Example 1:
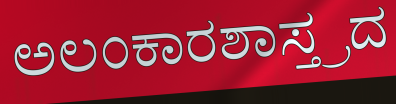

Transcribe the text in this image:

ಅಲಂಕಾರಶಾಸ್ತ್ರದ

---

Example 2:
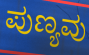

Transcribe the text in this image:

ಪುಣ್ಯವು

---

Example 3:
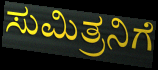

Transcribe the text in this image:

ಸುಮಿತ್ರನಿಗೆ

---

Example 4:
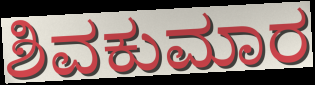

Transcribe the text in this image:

ಶಿವಕುಮಾರ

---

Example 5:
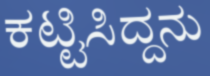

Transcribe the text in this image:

ಕಟ್ಟಿಸಿದ್ದನು